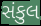
સંકુલ